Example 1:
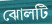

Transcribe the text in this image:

ঝোলটি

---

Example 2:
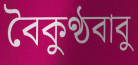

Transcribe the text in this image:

বৈকুণ্ঠবাবু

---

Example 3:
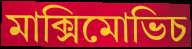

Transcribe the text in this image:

মাক্সিমোভিচ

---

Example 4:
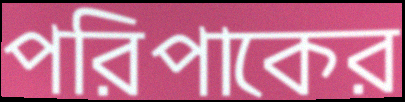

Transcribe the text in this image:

পরিপাকের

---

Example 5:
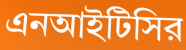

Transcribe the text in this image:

এনআইটিসির